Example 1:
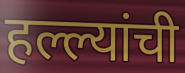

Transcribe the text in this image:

हल्ल्यांची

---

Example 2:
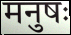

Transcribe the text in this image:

मनुषः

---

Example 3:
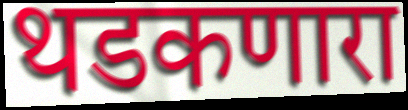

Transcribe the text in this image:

थडकणारा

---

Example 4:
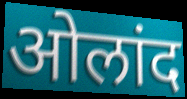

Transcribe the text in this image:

ओलांद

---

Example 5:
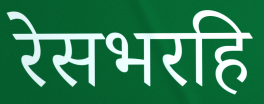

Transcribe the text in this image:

रेसभरहि